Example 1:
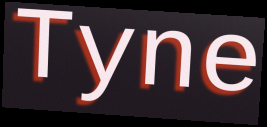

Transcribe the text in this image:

Tyne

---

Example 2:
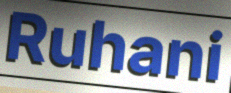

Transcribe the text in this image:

Ruhani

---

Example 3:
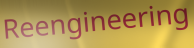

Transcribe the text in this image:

Reengineering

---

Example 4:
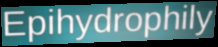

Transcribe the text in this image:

Epihydrophily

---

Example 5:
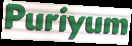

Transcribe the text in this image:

Puriyum